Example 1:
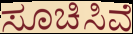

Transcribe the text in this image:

ಸೂಚಿಸಿವೆ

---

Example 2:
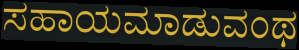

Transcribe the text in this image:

ಸಹಾಯಮಾಡುವಂಥ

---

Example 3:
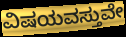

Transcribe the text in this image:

ವಿಷಯವಸ್ತುವೇ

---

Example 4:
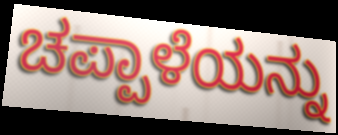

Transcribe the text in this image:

ಚಪ್ಪಾಳೆಯನ್ನು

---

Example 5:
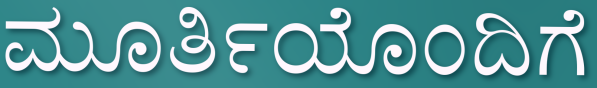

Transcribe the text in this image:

ಮೂರ್ತಿಯೊಂದಿಗೆ